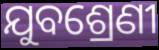
ଯୁବଶ୍ରେଣୀ